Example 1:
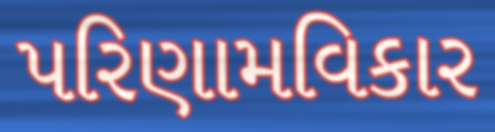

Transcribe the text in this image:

પરિણામવિકાર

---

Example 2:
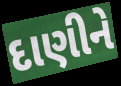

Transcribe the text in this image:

દાણીને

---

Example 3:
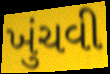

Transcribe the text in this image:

ખુંચવી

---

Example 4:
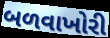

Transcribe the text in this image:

બળવાખોરી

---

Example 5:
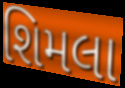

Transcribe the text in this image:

શિમલા